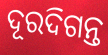
ଦୂରଦିଗନ୍ତ